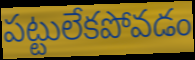
పట్టులేకపోవడం